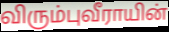
விரும்புவீராயின்